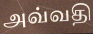
அவ்வதி